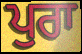
ਪੁਰਾ